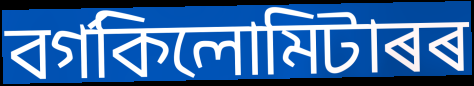
বৰ্গকিলোমিটাৰৰ